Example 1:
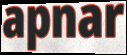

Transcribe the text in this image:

apnar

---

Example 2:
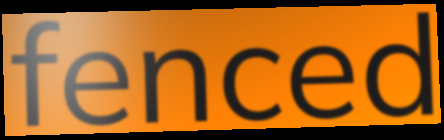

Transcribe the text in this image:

fenced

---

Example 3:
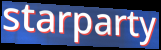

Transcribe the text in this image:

starparty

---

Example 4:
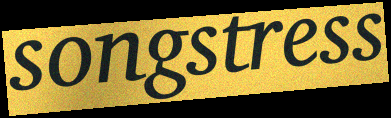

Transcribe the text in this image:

songstress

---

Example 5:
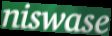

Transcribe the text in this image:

niswase